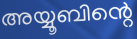
അയ്യൂബിന്റെ